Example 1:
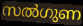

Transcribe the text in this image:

സൽഗുണ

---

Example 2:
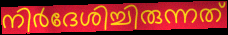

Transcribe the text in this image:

നിർദേശിച്ചിരുന്നത്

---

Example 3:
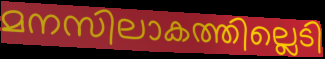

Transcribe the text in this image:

മനസിലാകത്തില്ലെടി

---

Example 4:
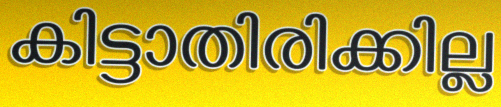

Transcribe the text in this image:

കിട്ടാതിരിക്കില്ല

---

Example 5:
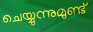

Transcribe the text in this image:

ചെയ്യുന്നുമുണ്ട്